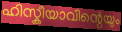
ഹിസ്കീയാവിന്റെയും